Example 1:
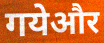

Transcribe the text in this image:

गयेऔर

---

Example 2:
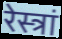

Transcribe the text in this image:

रेस्त्रां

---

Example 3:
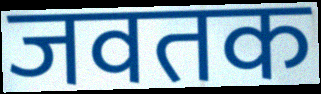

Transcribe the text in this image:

जवतक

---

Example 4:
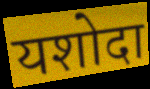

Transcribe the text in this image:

यशोदा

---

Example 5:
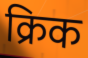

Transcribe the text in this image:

क्रिक